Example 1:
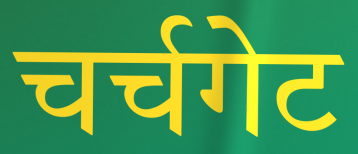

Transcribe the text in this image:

चर्चगेट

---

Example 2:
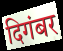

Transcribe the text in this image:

दिगंबर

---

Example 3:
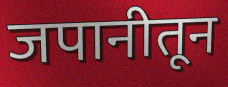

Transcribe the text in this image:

जपानीतून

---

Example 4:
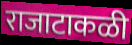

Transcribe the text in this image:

राजाटाकळी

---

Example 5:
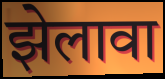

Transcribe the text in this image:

झेलावा